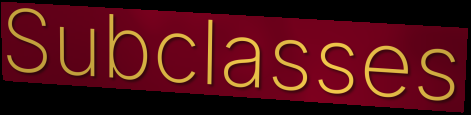
Subclasses